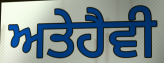
ਅਤੇਹੈਵੀ